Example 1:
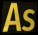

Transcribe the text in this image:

As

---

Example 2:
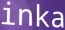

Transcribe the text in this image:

inka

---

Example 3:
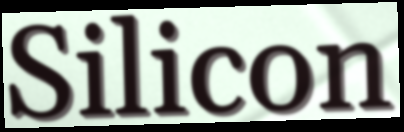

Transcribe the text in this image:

Silicon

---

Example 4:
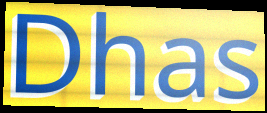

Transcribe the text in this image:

Dhas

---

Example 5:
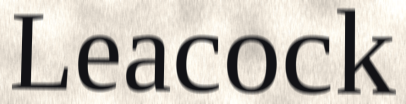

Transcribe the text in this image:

Leacock